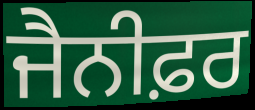
ਜੈਨੀਫ਼ਰ